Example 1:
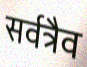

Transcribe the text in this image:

सर्वत्रैव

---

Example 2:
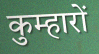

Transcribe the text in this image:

कुम्हारों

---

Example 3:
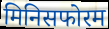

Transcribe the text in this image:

मिनिसफोरम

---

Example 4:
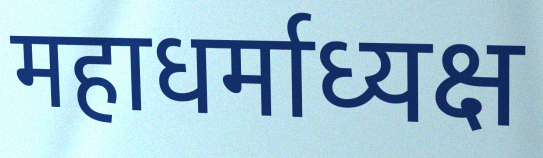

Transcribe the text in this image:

महाधर्माध्यक्ष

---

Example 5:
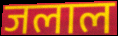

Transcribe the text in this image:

जलाल